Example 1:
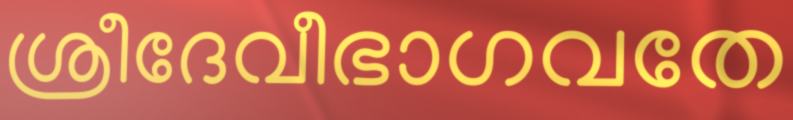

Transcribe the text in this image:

ശ്രീദേവീഭാഗവതേ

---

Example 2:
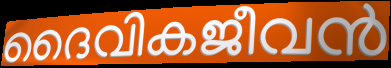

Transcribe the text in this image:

ദൈവികജീവൻ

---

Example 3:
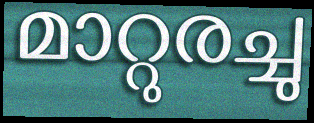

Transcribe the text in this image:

മാറ്റുരച്ചു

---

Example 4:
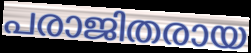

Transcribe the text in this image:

പരാജിതരായ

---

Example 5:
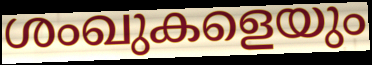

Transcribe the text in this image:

ശംഖുകളെയും